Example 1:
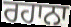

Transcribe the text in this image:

ਰਹਾਨਾ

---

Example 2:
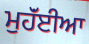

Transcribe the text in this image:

ਮੁਹੱਂਈਆ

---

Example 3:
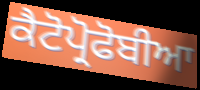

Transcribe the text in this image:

ਕੈਟੋਪ੍ਰੋਫੋਬੀਆ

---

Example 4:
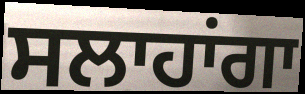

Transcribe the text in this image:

ਸਲਾਹਾਂਗਾ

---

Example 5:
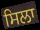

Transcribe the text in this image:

ਸਿਲਾ